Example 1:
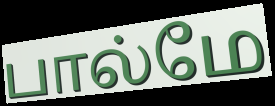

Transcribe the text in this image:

பால்மே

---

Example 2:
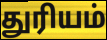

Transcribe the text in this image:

துரியம்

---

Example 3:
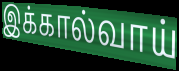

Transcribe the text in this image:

இக்கால்வாய்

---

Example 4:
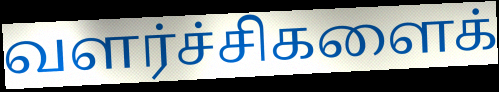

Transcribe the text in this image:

வளர்ச்சிகளைக்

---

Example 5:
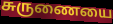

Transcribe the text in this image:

சுருணையை